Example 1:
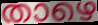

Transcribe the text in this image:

താഴെ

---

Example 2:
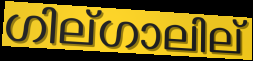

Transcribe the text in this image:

ഗില്ഗാലില്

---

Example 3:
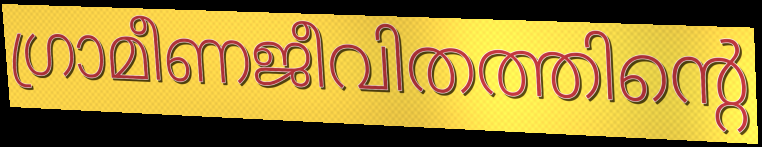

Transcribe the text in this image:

ഗ്രാമീണജീവിതത്തിന്റെ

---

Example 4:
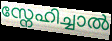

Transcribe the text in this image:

സ്നേഹിച്ചാൽ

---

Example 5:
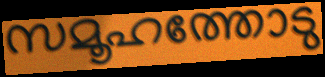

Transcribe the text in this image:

സമൂഹത്തോടു